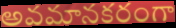
అవమానకరంగా